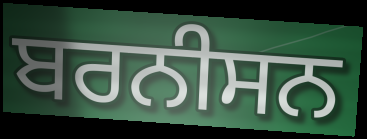
ਬਰਨੀਸਨ